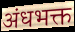
अंधभक्त